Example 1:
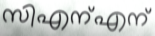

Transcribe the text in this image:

സിഎന്എന്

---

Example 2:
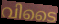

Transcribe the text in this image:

വിടൈ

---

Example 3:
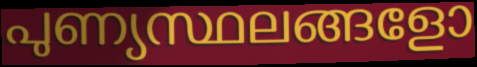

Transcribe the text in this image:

പുണ്യസ്ഥലങ്ങളോ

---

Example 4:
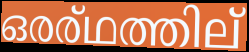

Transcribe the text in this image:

ഒരര്ഥത്തില്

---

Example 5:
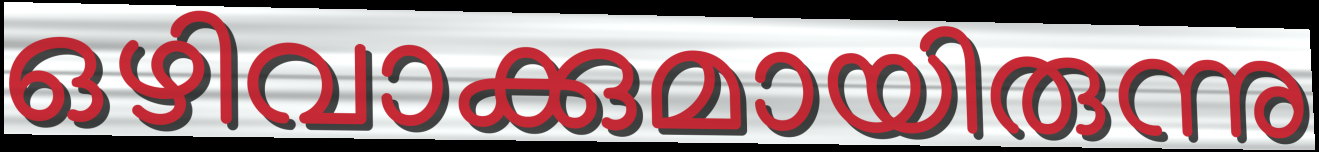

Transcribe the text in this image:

ഒഴിവാക്കുമായിരുന്നു